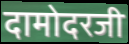
दामोदरजी